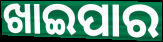
ଖାଇପାର